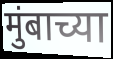
मुंबाच्या